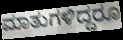
ಮಾತುಗಳಿದ್ದರೂ